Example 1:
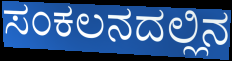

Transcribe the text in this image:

ಸಂಕಲನದಲ್ಲಿನ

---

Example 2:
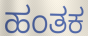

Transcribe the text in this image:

ಹಂತಕ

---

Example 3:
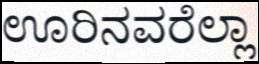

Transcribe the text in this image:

ಊರಿನವರೆಲ್ಲಾ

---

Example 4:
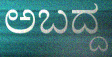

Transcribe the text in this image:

ಅಬದ್ದ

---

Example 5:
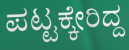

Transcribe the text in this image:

ಪಟ್ಟಕ್ಕೇರಿದ್ದ